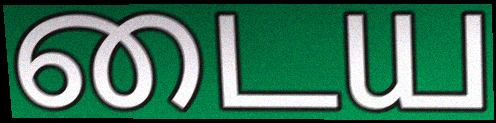
டைய